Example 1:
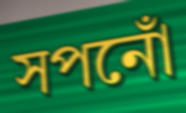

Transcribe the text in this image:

সপনোঁ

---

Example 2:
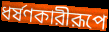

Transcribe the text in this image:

ধর্ষণকারীরূপে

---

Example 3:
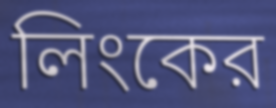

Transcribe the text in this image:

লিংকের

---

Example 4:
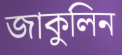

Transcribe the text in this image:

জাকুলিন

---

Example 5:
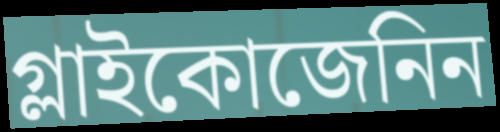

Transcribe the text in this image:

গ্লাইকোজেনিন